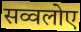
सव्वलोए